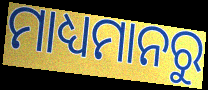
ମାଧ୍ୟମାନରୁ